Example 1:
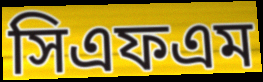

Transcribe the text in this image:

সিএফএম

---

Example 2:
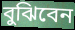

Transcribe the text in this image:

বুঝিবেন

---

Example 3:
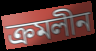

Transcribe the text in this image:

ক্রমলীন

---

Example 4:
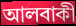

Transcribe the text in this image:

আলবাকী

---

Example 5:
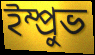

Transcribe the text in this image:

ইম্প্রুভ